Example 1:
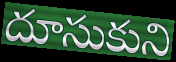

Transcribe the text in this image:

దూసుకుని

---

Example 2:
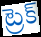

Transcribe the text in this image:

ట్రెక్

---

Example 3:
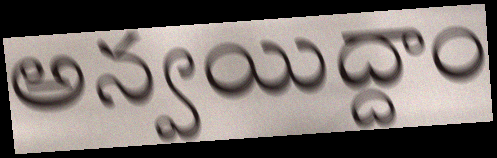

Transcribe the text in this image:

అన్వయిద్దాం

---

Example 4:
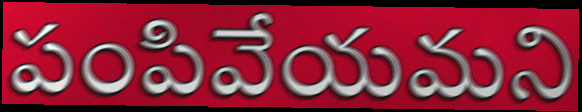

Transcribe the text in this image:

పంపివేయమని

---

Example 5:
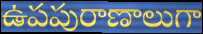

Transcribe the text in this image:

ఉపపురాణాలుగా